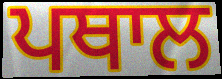
ਪਥਾਲ